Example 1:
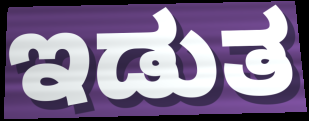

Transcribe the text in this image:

ಇಡುತ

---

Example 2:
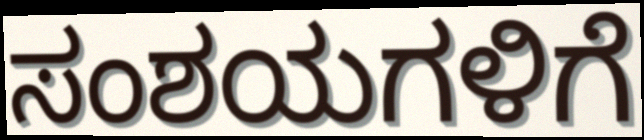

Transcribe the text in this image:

ಸಂಶಯಗಳಿಗೆ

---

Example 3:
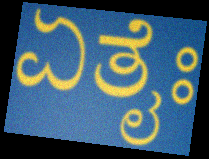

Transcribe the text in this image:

ಏತೈಃ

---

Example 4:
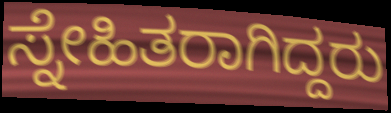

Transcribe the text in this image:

ಸ್ನೇಹಿತರಾಗಿದ್ದರು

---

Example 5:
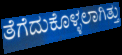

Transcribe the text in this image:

ತೆಗೆದುಕೊಳ್ಳಲಾಗಿತ್ತು